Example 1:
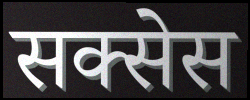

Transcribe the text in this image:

सक्सेस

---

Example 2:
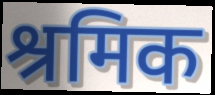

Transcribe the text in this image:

श्रमिक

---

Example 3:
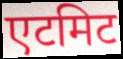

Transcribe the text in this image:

एटमिट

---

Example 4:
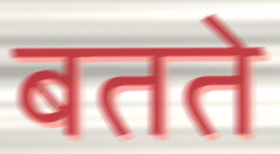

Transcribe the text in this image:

बतते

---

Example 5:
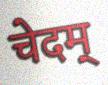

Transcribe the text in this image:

चेदम्